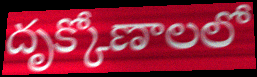
దృక్కోణాలలో